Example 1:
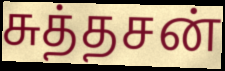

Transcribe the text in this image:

சுத்தசன்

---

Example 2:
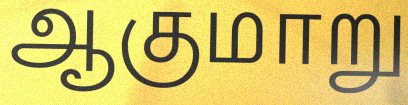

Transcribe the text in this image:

ஆகுமாறு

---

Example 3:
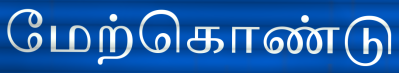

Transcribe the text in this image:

மேற்கொண்டு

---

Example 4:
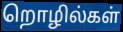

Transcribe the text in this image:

றொழில்கள்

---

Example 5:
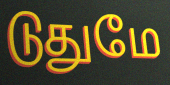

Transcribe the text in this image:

டுதுமே